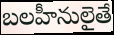
బలహీనులైతే